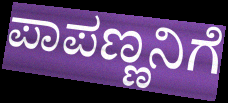
ಪಾಪಣ್ಣನಿಗೆ